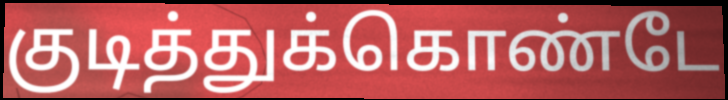
குடித்துக்கொண்டே